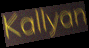
Kallyan